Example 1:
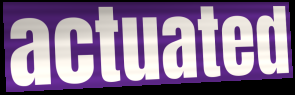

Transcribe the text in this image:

actuated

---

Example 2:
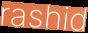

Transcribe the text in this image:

rashid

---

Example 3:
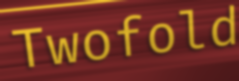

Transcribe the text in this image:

Twofold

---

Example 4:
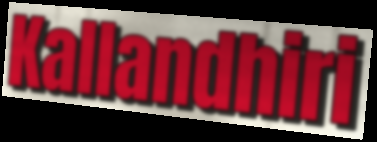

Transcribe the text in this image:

Kallandhiri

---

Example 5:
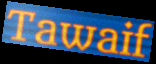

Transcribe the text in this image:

Tawaif